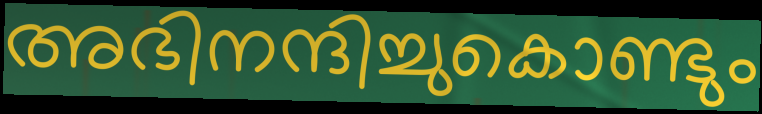
അഭിനന്ദിച്ചുകൊണ്ടും